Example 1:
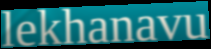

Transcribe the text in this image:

lekhanavu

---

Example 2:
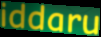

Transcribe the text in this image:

iddaru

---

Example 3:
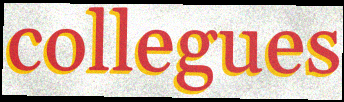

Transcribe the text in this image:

collegues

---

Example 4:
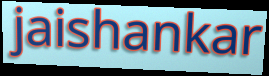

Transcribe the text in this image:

jaishankar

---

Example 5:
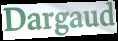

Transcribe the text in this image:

Dargaud